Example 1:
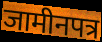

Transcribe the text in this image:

जामीनपत्र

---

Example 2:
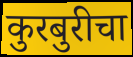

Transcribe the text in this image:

कुरबुरीचा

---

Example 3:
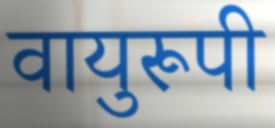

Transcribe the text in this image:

वायुरूपी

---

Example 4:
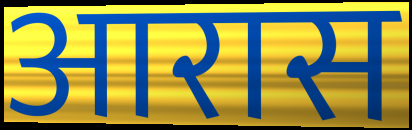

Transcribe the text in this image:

आरास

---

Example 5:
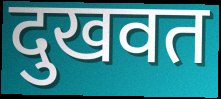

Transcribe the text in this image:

दुखवत